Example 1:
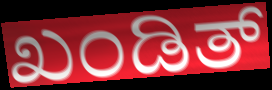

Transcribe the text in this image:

ಖಂಡಿತ್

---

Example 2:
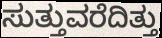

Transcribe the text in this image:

ಸುತ್ತುವರೆದಿತ್ತು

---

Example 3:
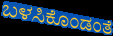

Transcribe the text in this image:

ಬಳಸಿಕೊಂಡಂತೆ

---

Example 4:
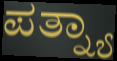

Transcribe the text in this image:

ಪತ್ನ್ಯಾ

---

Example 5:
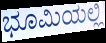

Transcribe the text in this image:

ಭೂಮಿಯಲ್ಲಿ